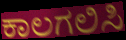
ಕಾಲಗಲಿಸಿ